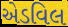
એડવિલ